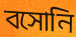
বসোনি